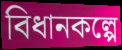
বিধানকল্পে